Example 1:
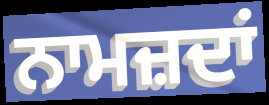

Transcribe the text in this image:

ਨਾਮਜ਼ਦਾਂ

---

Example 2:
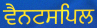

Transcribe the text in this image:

ਵੈਨਟਸਪਿਲ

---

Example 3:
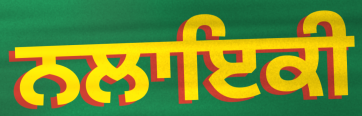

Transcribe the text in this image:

ਨਲਾਇਕੀ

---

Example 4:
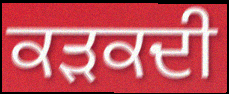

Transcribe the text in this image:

ਕੜਕਦੀ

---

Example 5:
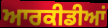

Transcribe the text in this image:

ਆਰਕੀਡੀਆਂ